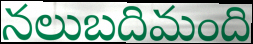
నలుబదిమంది